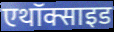
एथॉक्साइड